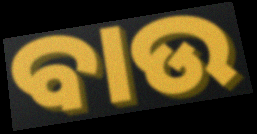
ବାଉ